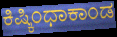
ಕಿಷ್ಕಿಂಧಾಕಾಂಡ